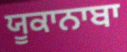
ਯੂਕਾਨਾਬਾ